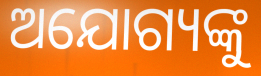
ଅଯୋଗ୍ୟଙ୍କୁ